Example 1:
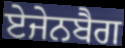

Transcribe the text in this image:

ਏਜੇਨਬੈਗ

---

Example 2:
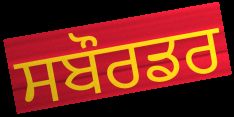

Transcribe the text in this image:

ਸਬੌਰਡਰ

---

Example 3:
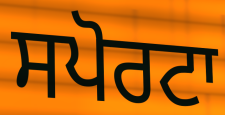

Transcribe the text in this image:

ਸਪੋਰਟਾ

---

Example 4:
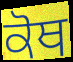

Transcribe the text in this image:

ਕੋਥ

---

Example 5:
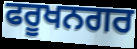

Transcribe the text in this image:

ਫਰੂਖਨਗਰ